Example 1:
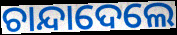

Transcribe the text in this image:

ଚାନ୍ଦାଦେଲେ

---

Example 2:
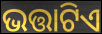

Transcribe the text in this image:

ଭତ୍ତାଟିଏ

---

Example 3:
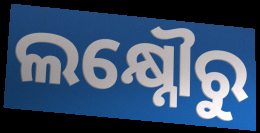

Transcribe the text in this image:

ଲକ୍ଷ୍ନୌରୁ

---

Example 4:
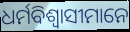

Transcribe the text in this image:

ଧର୍ମବିଶ୍ଵାସୀମାନେ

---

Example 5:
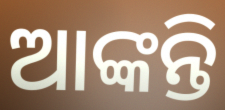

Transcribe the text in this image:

ଆଙ୍କନ୍ତି